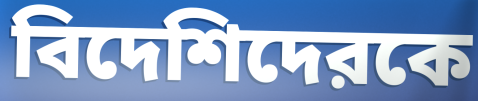
বিদেশিদেরকে